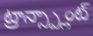
ట్రాన్స్ప్లాంట్